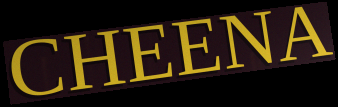
CHEENA